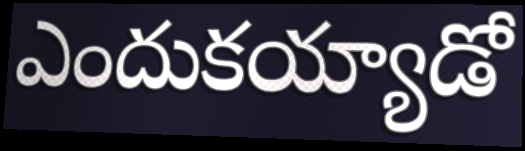
ఎందుకయ్యాడో